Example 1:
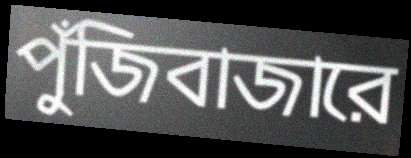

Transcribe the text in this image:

পুঁজিবাজারে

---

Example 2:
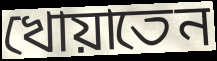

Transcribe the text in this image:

খোয়াতেন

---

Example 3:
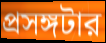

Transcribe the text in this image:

প্রসঙ্গটার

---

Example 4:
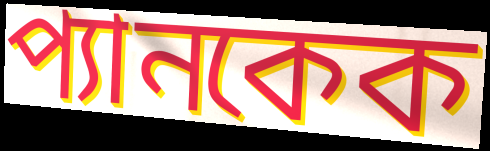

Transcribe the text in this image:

প্যানকেক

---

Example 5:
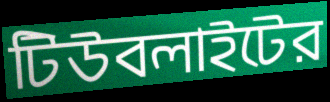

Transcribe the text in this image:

টিউবলাইটের